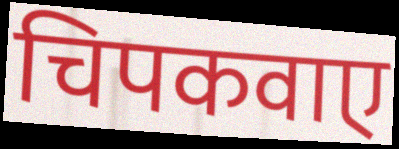
चिपकवाए